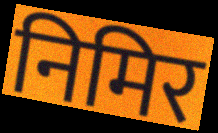
निमिर